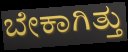
ಬೇಕಾಗಿತ್ತು